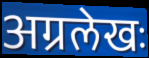
अग्रलेखः